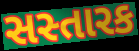
સસ્તારક